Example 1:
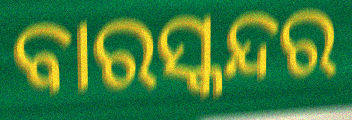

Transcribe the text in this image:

ବାରସ୍କନ୍ଦର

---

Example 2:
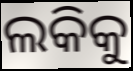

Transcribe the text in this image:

ଲକିକୁ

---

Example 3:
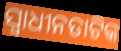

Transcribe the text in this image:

ସ୍ୱାଧୀନତାଟିକ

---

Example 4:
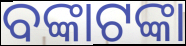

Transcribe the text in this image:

ବଙ୍କାଟଙ୍କା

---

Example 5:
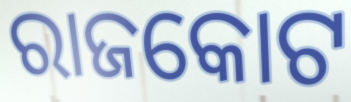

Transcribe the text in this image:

ରାଜକୋଟ